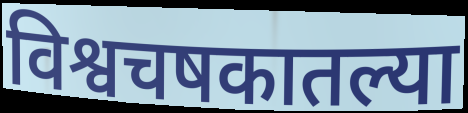
विश्वचषकातल्या